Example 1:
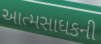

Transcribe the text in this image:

આત્મસાધકની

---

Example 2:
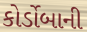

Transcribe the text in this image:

કોર્ડોબાની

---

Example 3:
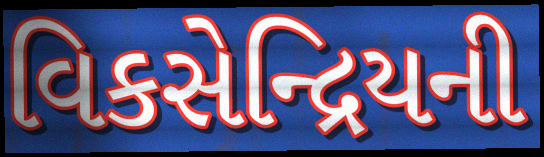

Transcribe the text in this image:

વિકસેન્દ્રિયની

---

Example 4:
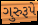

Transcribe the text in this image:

ગુરુરૂપે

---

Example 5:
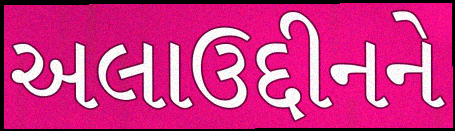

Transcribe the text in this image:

અલાઉદ્દીનને